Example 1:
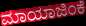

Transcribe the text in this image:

ಮಾಯಾಜಿಂಕೆ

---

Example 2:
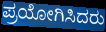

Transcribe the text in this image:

ಪ್ರಯೋಗಿಸಿದರು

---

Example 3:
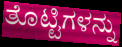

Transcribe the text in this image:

ತೊಟ್ಟಿಗಳನ್ನು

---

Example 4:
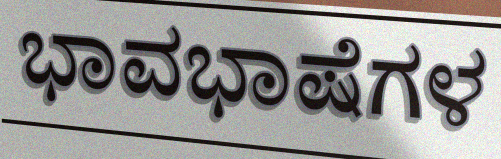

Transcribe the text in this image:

ಭಾವಭಾಷೆಗಳ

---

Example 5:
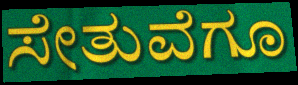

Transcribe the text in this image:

ಸೇತುವೆಗೂ